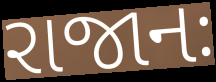
રાજાનઃ